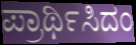
ಪ್ರಾರ್ಥಿಸಿದಂ